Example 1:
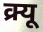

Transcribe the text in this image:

क्र्यू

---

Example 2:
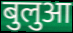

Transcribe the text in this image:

बुलुआ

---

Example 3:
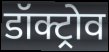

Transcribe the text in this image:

डॉक्ट्रोव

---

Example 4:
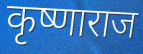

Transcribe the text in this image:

कृष्णाराज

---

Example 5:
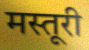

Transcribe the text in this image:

मस्तूरी